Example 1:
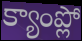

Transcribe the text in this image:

క్యాంప్లో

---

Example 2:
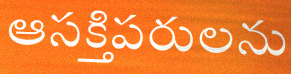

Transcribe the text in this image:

ఆసక్తిపరులను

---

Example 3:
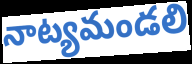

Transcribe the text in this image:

నాట్యమండలి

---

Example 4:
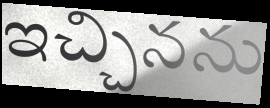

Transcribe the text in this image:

ఇచ్చినను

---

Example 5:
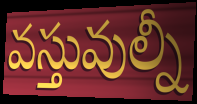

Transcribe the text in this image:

వస్తువుల్నీ